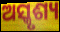
ଅସ୍କୃଶ୍ୟ